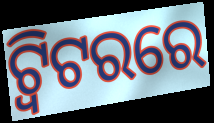
ଟ୍ବିଟରରେ